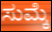
ಸುಮ್ಕೆ